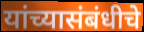
यांच्यासंबंधीचे